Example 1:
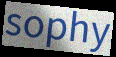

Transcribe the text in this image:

sophy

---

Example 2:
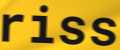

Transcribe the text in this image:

riss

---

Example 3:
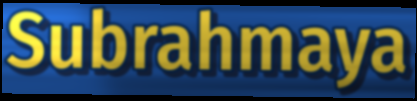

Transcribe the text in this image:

Subrahmaya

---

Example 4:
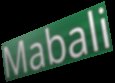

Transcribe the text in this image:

Mabali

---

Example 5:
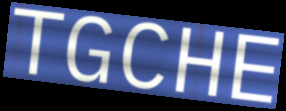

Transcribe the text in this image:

TGCHE